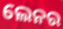
ଲେନର